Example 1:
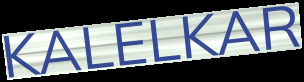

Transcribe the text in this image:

KALELKAR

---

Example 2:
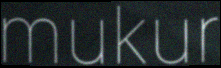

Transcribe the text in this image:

mukur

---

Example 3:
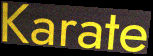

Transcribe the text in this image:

Karate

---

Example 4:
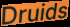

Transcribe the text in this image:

Druids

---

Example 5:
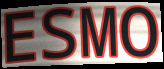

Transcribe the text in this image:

ESMO